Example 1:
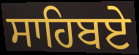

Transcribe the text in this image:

ਸਾਹਿਬਏ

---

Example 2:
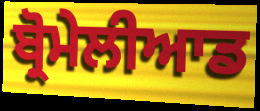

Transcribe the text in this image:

ਬ੍ਰੋਮੇਲੀਆਡ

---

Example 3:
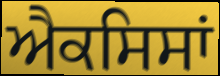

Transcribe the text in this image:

ਐਕਸਿਸਾਂ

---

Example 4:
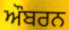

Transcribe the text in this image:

ਔਬਰਨ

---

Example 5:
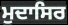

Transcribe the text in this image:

ਮੁਦਾਸਿਰ